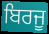
ਬਿਰਜੂ